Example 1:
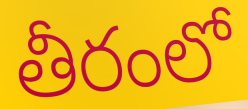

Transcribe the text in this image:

తీరంలో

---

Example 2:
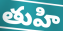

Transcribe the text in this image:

తుహి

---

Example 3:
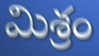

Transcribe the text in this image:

మిశ్రం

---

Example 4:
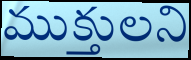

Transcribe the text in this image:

ముక్తులని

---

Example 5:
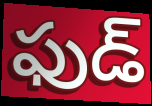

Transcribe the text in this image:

ఫుడ్